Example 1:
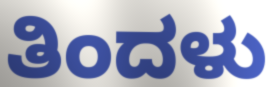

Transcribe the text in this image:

ತಿಂದಳು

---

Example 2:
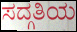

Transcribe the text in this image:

ಸದ್ಗತಿಯ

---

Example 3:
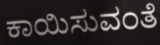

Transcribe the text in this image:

ಕಾಯಿಸುವಂತೆ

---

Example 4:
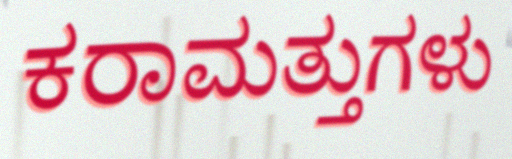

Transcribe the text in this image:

ಕರಾಮತ್ತುಗಳು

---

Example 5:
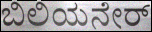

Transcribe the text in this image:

ಬಿಲಿಯನೇರ್